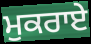
ਮੁਕਰਾਏ